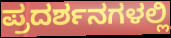
ಪ್ರದರ್ಶನಗಳಲ್ಲಿ